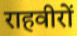
राहवीरों